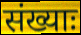
संख्याः